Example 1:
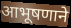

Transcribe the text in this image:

आभूषणाने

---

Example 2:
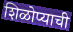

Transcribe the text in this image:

शिळोप्याची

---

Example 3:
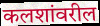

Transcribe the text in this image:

कलशांवरील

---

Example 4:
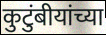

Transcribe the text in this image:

कुटुंबीयांच्या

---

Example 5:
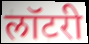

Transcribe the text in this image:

लॉटरी